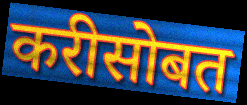
करीसोबत